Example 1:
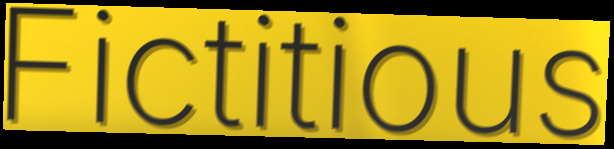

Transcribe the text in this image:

Fictitious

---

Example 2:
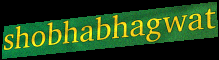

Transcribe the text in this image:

shobhabhagwat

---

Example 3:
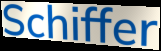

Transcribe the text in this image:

Schiffer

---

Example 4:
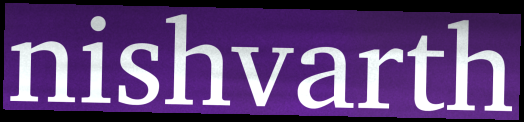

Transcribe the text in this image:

nishvarth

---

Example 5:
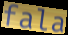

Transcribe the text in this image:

fala